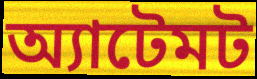
অ্যাটেমট